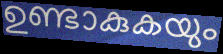
ഉണ്ടാകുകയും